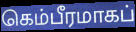
கெம்பீரமாகப்